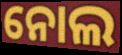
ନୋଲ